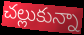
చల్లుకున్నా